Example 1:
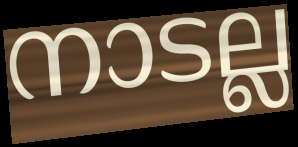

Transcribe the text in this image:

നാടല്ല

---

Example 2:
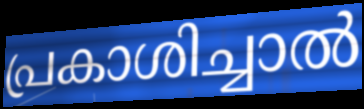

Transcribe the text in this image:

പ്രകാശിച്ചാൽ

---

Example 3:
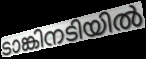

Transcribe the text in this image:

ടാങ്കിനടിയിൽ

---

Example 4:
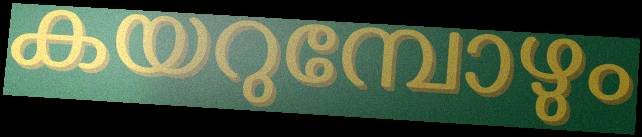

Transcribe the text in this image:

കയറുമ്പോഴും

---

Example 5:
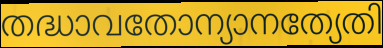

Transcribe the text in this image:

തദ്ധാവതോന്യാനത്യേതി